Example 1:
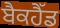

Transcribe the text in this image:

ਬੈਕਹੈੱਡ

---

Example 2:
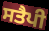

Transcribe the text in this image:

ਸਤੈਪੀ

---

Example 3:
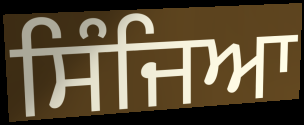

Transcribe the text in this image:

ਸਿੰਜਿਆ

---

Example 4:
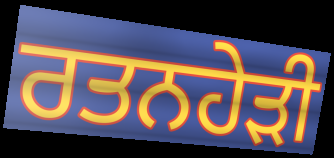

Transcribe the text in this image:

ਰਤਨਹੇੜੀ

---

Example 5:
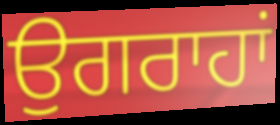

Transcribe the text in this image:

ਉਗਰਾਹਾਂ